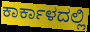
ಕಾರ್ಕಾಳದಲ್ಲಿ